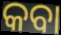
କବା